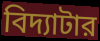
বিদ্যাটার